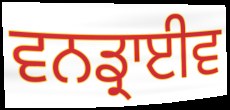
ਵਨਡ੍ਰਾਈਵ